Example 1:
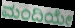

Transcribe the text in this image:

ಮಂದಿಯೇ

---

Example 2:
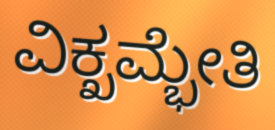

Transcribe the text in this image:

ವಿಕ್ಖಮ್ಭೇತಿ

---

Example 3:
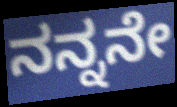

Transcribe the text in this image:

ನನ್ನನೇ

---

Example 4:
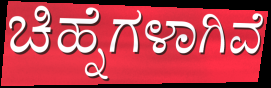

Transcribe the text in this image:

ಚಿಹ್ನೆಗಳಾಗಿವೆ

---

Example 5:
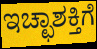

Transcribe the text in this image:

ಇಚ್ಛಾಶಕ್ತಿಗೆ